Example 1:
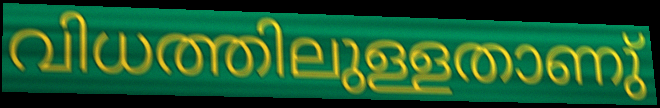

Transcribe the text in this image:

വിധത്തിലുള്ളതാണു്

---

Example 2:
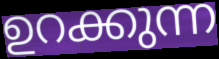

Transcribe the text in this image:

ഉറക്കുന്ന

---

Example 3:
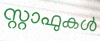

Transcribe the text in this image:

സ്റ്റാഫുകൾ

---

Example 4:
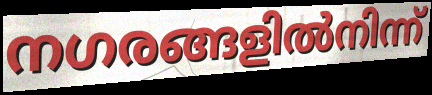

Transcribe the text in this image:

നഗരങ്ങളിൽനിന്ന്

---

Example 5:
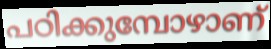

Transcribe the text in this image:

പഠിക്കുമ്പോഴാണ്